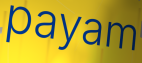
payam